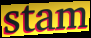
stam